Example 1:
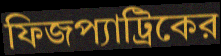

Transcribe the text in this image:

ফিজপ্যাট্রিকের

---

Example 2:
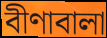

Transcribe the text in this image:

বীণাবালা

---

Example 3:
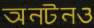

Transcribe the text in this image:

অনটনও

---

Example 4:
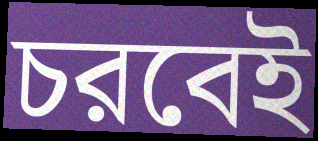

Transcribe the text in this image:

চরবেই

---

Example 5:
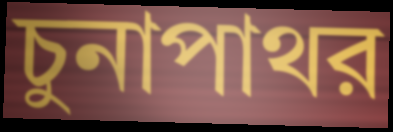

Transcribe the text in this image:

চুনাপাথর